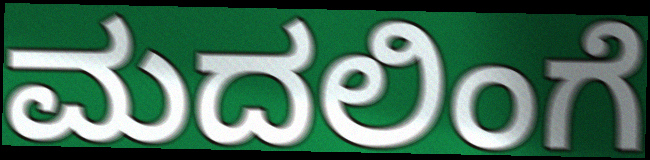
ಮದಲಿಂಗೆ